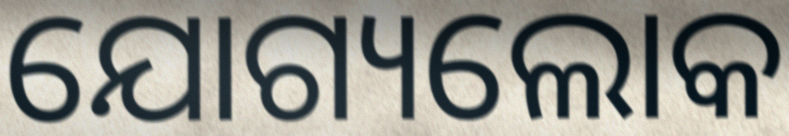
ଯୋଗ୍ୟଲୋକ